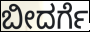
ಬೀದರ್ಗೆ